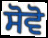
ਸੋਵੋ